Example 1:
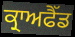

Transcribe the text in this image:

ਕ੍ਰਾਅਫੈੱਡ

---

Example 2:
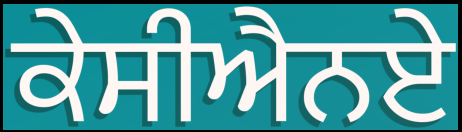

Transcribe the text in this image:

ਕੇਸੀਐਨਏ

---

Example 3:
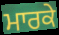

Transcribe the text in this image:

ਮਾਰਕੇ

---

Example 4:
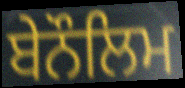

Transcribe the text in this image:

ਬੇਨੌਲਿਮ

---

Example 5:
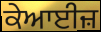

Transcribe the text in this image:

ਕੇਆਈਜ਼